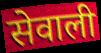
सेवाली